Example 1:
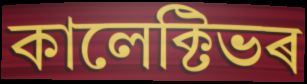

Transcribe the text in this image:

কালেক্টিভৰ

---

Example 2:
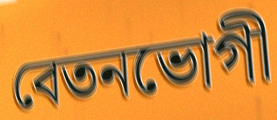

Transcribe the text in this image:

বেতনভোগী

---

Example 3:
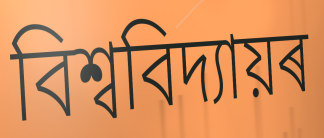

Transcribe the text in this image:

বিশ্ববিদ্যায়ৰ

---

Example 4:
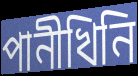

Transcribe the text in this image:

পানীখিনি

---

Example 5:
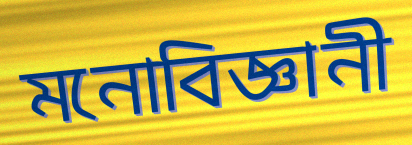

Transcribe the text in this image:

মনোবিজ্ঞানী